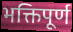
भक्तिपूर्ण